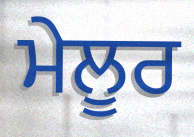
ਮੇਲੂਰ